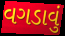
વગડાવું